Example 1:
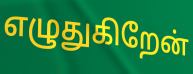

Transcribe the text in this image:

எழுதுகிறேன்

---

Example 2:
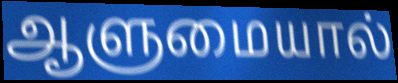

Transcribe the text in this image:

ஆளுமையால்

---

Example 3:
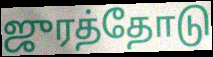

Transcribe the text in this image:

ஜுரத்தோடு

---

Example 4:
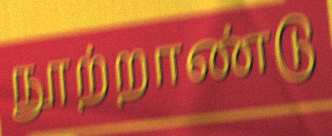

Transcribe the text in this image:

நூற்றாண்டு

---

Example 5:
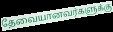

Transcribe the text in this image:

தேவையானவர்களுக்கு